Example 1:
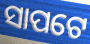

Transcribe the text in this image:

ସାପଟେ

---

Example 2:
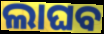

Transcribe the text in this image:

ଲାଘବ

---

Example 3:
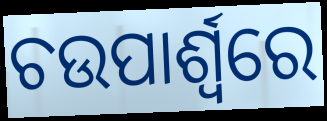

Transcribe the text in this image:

ଚଉପାର୍ଶ୍ୱରେ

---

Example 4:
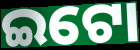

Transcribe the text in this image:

ଇଟୋ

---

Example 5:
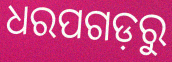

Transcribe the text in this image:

ଧରପଗଡ଼ରୁ